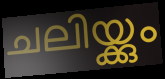
ചലിയ്ക്കും